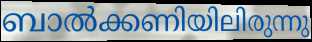
ബാൽക്കണിയിലിരുന്നു